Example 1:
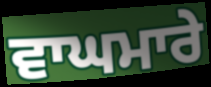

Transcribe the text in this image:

ਵਾਘਮਾਰੇ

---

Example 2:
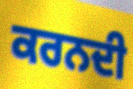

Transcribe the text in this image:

ਕਰਨਦੀ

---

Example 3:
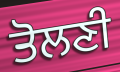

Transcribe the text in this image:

ਤੋਲਣੀ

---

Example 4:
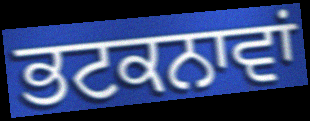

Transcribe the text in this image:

ਭਟਕਨਾਵਾਂ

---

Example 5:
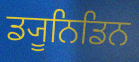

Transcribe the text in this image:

ਡ੍ਯੂਨਿਡਿਨ